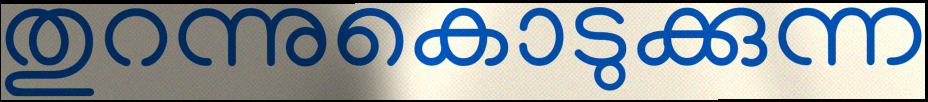
തുറന്നുകൊടുക്കുന്ന